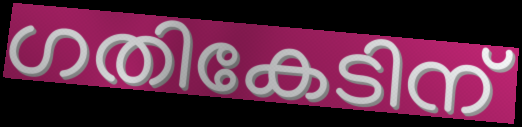
ഗതികേടിന്